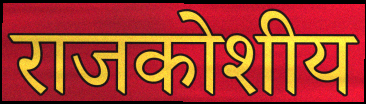
राजकोशीय